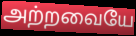
அற்றவையே